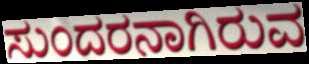
ಸುಂದರನಾಗಿರುವ